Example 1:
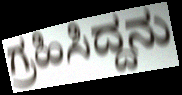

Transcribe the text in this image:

ಗ್ರಹಿಸಿದ್ದನು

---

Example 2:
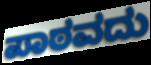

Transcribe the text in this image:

ಪಾಠವದು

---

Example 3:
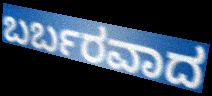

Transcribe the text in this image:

ಬರ್ಬರವಾದ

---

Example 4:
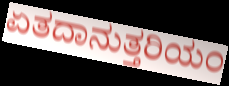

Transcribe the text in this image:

ಏತದಾನುತ್ತರಿಯಂ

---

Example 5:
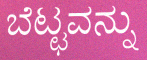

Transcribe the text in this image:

ಬೆಟ್ಟವನ್ನು